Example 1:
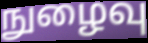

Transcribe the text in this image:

நுழைவு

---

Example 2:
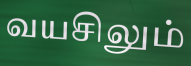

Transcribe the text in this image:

வயசிலும்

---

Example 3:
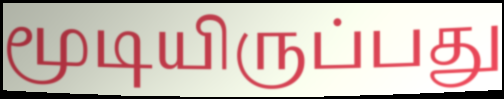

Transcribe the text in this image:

மூடியிருப்பது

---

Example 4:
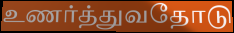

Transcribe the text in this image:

உணர்த்துவதோடு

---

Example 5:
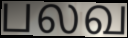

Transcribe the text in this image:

பலவ